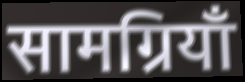
सामग्रियाँ